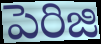
పెరిజి